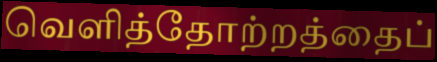
வெளித்தோற்றத்தைப்